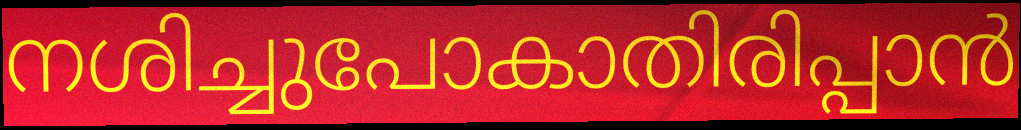
നശിച്ചുപോകാതിരിപ്പാൻ